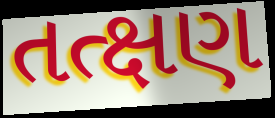
તત્ક્ષણ